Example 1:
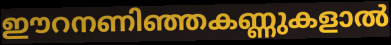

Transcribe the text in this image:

ഈറനണിഞ്ഞകണ്ണുകളാൽ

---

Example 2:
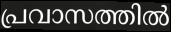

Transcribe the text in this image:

പ്രവാസത്തിൽ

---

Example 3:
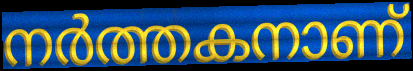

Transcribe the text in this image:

നർത്തകനാണ്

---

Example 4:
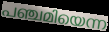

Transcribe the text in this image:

പഞ്ചമിയെന്ന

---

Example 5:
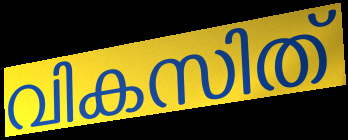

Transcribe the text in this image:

വികസിത്